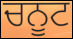
ਚਨੂਟ